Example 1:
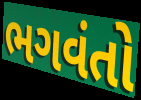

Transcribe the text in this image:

ભગવંતો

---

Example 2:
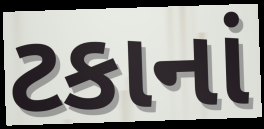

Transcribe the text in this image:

ટકાનાં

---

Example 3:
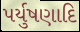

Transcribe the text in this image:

પર્યુષણાદિ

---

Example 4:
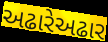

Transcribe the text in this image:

અઢારેઅઢાર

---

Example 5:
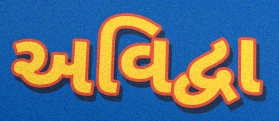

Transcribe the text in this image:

અવિદ્વા